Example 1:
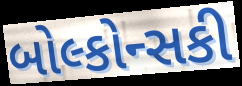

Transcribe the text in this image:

બોલ્કોન્સકી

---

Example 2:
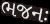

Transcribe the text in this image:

ભજનઃ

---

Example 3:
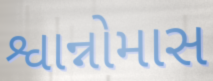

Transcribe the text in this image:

શ્વાન્નોમાસ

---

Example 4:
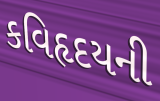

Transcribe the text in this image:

કવિહૃદયની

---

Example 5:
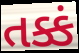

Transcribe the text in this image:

તક્કં